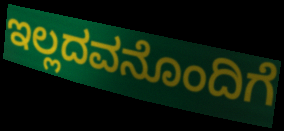
ಇಲ್ಲದವನೊಂದಿಗೆ